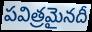
పవిత్రమైనదీ